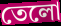
তেলো